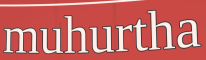
muhurtha